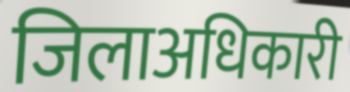
जिलाअधिकारी